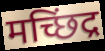
मच्छिंद्र